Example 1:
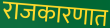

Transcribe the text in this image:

राजकारणात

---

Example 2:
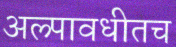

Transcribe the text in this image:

अल्पावधीतच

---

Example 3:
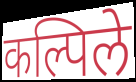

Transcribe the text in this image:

कल्पिले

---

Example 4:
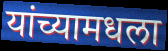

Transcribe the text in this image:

यांच्यामधला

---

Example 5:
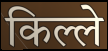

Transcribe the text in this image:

किल्ले